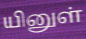
யினுள்